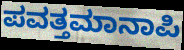
ಪವತ್ತಮಾನಾಪಿ